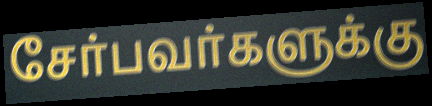
சேர்பவர்களுக்கு